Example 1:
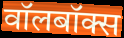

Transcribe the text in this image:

वॉलबॉक्स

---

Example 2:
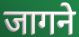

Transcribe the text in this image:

जागने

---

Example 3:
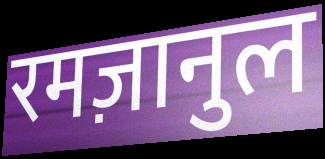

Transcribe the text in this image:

रमज़ानुल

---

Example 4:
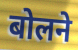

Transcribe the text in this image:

बोलने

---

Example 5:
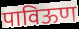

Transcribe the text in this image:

पाविऊण